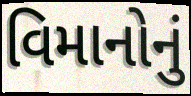
વિમાનોનું